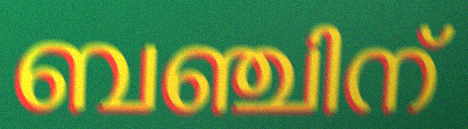
ബഞ്ചിന്